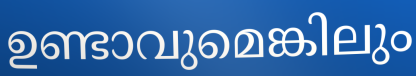
ഉണ്ടാവുമെങ്കിലും